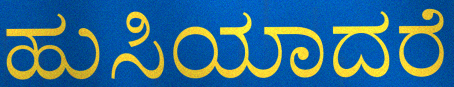
ಹುಸಿಯಾದರೆ